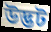
উদ্ভট